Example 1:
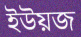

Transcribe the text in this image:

ইউয়জ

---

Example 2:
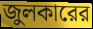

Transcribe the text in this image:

জুলকারের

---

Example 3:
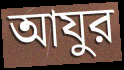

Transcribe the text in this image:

আযুর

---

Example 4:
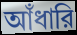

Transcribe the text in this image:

আঁধারি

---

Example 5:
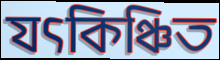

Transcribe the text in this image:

যৎকিঞ্চিত